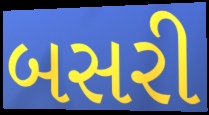
બસરી